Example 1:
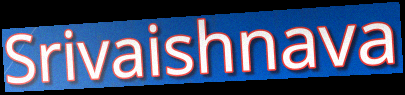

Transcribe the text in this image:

Srivaishnava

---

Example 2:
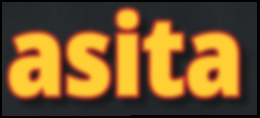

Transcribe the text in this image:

asita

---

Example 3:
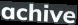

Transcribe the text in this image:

achive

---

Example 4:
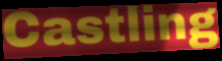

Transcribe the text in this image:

Castling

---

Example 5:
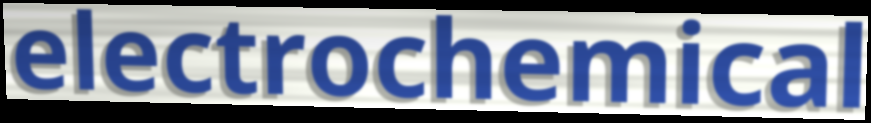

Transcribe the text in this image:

electrochemical